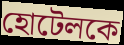
হোটেলকে